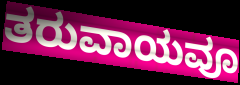
ತರುವಾಯವೂ